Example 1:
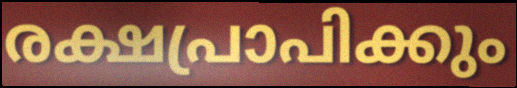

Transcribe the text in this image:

രക്ഷപ്രാപിക്കും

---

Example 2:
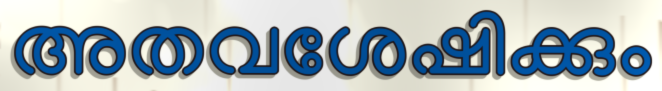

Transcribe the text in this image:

അതവശേഷിക്കും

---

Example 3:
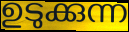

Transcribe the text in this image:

ഉടുക്കുന്ന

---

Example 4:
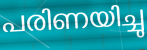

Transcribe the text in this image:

പരിണയിച്ചു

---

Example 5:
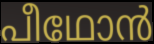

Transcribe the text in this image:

പീഥോൻ